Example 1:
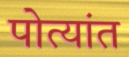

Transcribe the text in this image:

पोत्यांत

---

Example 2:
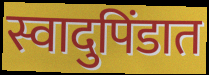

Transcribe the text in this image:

स्वादुपिंडात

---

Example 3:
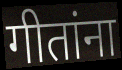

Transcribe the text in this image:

गीतांना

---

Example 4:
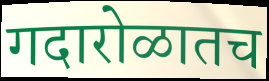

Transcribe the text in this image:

गदारोळातच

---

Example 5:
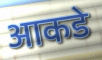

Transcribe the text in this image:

आकडे